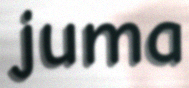
juma